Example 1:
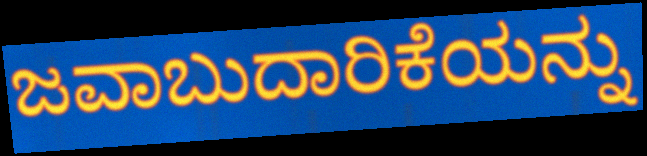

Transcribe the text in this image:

ಜವಾಬುದಾರಿಕೆಯನ್ನು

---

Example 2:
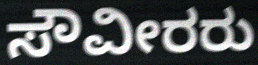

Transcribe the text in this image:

ಸೌವೀರರು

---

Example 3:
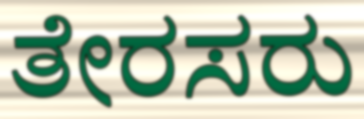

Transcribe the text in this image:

ತೇರಸರು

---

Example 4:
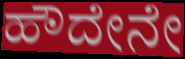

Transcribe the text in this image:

ಹೌದೇನೇ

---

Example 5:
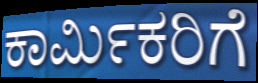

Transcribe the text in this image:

ಕಾರ್ಮಿಕರಿಗೆ